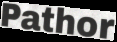
Pathor